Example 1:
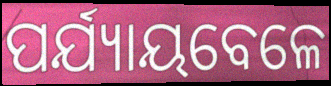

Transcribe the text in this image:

ପର୍ଯ୍ୟାୟବେଳେ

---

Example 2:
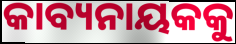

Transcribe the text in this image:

କାବ୍ୟନାୟକକୁ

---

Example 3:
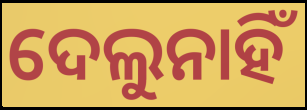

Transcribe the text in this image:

ଦେଲୁନାହିଁ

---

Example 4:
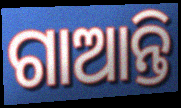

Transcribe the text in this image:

ଗାଆନ୍ତି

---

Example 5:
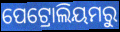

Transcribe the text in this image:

ପେଟ୍ରୋଲିୟମରୁ